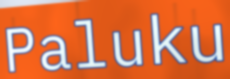
Paluku